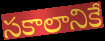
సకాలానికే